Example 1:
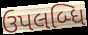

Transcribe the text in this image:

ઉપલબ્ધિ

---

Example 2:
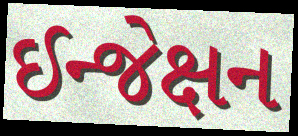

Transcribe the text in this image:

ઈન્જેક્ષન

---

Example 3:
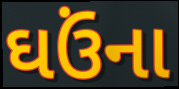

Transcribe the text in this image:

ઘઉંના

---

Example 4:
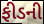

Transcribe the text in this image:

ફીડની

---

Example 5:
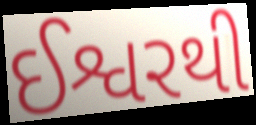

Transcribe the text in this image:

ઈશ્વરથી